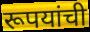
रूपयांची